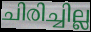
ചിരിച്ചില്ല